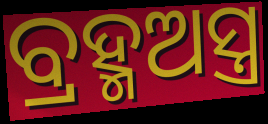
ବ୍ରହ୍ମଅସ୍ତ୍ର